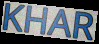
KHAR